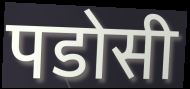
पडोसी